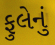
ફુલેનું